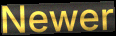
Newer